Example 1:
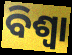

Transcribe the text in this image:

ବିଶ୍ବା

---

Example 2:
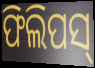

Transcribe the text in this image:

ଫିଲିପସ୍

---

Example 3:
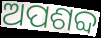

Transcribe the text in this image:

ଅପଶବ୍ଦ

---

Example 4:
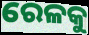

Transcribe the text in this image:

ରେଳକୁ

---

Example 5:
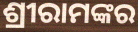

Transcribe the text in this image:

ଶ୍ରୀରାମଙ୍କର